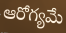
ఆరోగ్యమే